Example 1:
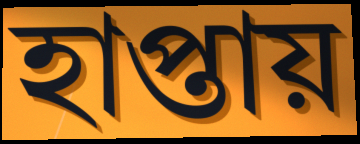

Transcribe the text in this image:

হাপ্তায়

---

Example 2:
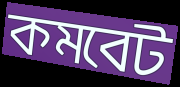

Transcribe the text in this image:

কমবেট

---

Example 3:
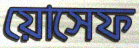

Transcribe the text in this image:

য়োসেফ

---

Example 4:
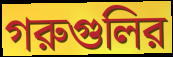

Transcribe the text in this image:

গরুগুলির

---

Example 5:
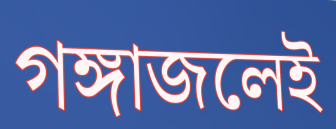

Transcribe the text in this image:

গঙ্গাজলেই